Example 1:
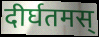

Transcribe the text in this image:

दीर्घतमस्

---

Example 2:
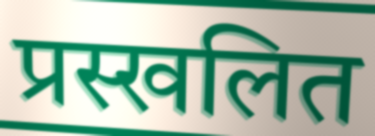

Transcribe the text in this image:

प्रस्खलित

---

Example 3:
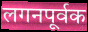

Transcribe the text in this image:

लगनपूर्वक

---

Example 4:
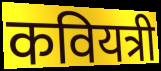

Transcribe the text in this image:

कवियत्री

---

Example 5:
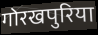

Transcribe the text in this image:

गोरखपुरिया